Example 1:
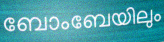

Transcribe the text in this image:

ബോംബേയിലും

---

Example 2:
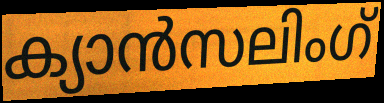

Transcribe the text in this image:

ക്യാൻസലിംഗ്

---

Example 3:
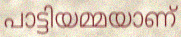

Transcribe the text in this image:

പാട്ടിയമ്മയാണ്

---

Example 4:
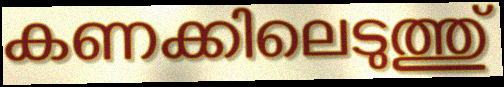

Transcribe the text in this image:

കണക്കിലെടുത്തു്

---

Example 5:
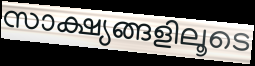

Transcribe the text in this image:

സാക്ഷ്യങ്ങളിലൂടെ